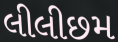
લીલીછમ